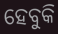
ହେବୁକି